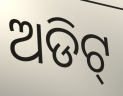
ଅଡିଟ୍